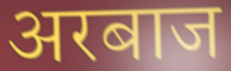
अरबाज